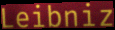
Leibniz